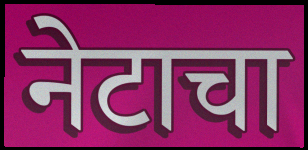
नेटाचा